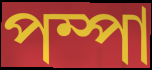
পম্পা